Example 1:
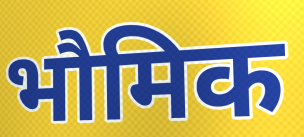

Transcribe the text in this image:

भौमिक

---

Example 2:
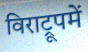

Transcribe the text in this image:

विराट्रूपमें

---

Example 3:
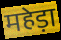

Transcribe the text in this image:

महेड़ा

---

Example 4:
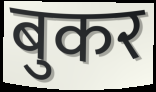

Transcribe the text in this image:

बुकर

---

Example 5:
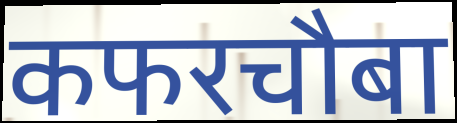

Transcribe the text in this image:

कफरचौबा